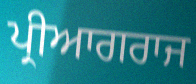
ਪ੍ਰੀਆਗਰਾਜ